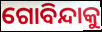
ଗୋବିନ୍ଦାକୁ